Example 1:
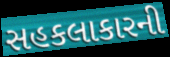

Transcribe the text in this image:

સહકલાકારની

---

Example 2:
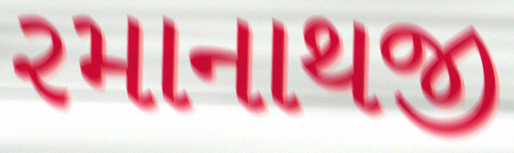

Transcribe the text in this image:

રમાનાથજી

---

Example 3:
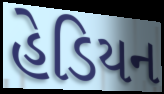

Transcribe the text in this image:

હેડિયન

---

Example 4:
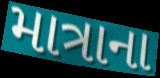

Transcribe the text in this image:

માત્રાના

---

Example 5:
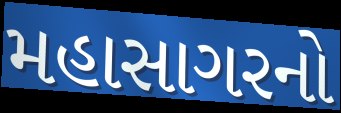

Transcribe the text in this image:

મહાસાગરનો